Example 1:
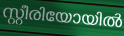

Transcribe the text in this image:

സ്റ്റീരിയോയിൽ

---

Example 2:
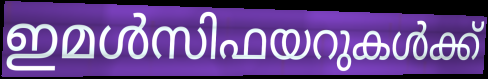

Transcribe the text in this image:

ഇമൾസിഫയറുകൾക്ക്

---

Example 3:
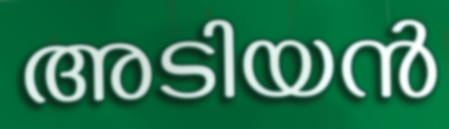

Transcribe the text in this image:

അടിയൻ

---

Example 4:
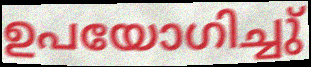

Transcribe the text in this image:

ഉപയോഗിച്ചു്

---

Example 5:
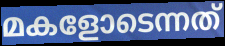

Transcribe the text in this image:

മകളോടെന്നത്